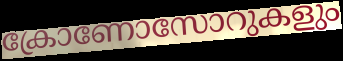
ക്രോണോസോറുകളും